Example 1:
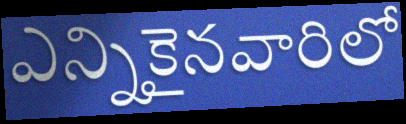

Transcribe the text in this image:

ఎన్నికైనవారిలో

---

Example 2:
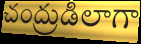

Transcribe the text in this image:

చంద్రుడిలాగా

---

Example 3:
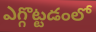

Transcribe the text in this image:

ఎగ్గొట్టడంలో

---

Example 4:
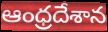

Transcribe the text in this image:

ఆంధ్రదేశాన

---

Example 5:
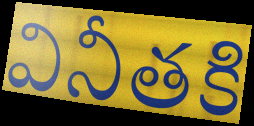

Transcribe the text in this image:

వినీతకి